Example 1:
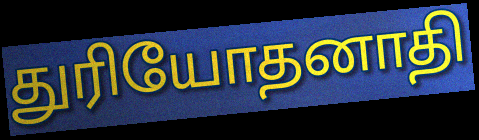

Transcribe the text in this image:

துரியோதனாதி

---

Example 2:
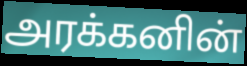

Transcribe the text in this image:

அரக்கனின்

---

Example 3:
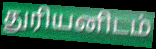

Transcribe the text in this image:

துரியனிடம்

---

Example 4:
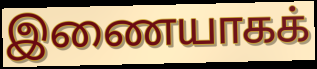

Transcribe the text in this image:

இணையாகக்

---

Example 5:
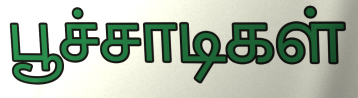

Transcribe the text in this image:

பூச்சாடிகள்